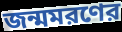
জন্মমরণের